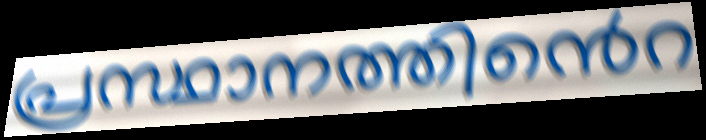
പ്രസ്ഥാനത്തിൻെറ